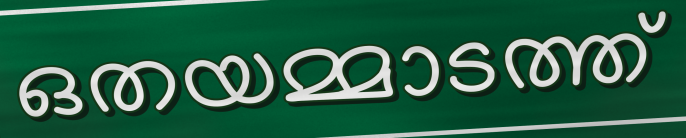
ഒതയമ്മാടത്ത്